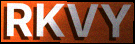
RKVY